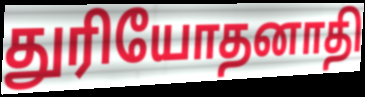
துரியோதனாதி